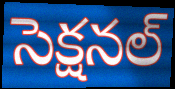
సెక్షనల్